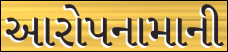
આરોપનામાની